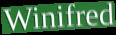
Winifred